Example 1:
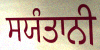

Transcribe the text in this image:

ਸਯੰਤਾਨੀ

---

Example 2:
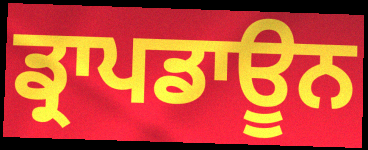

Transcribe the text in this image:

ਡ੍ਰਾਪਡਾਊਨ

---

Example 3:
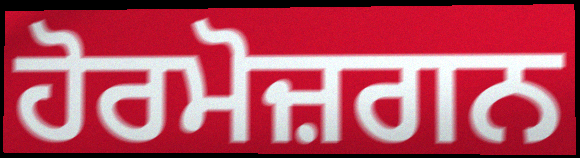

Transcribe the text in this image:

ਹੋਰਮੋਜ਼ਗਨ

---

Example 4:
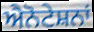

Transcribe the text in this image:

ਐਨੋਟੇਸ਼ਨਾਂ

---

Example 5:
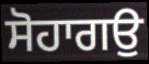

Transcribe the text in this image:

ਸੋਹਾਗਉ